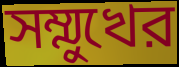
সম্মুখের